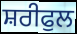
ਸ਼ਰੀਫੁਲ